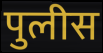
पुलीस